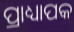
ପ୍ରାଧ୍ୟାପକ